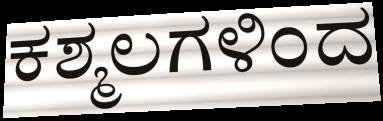
ಕಶ್ಮಲಗಳಿಂದ